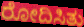
ರೋದಿಸಿತು